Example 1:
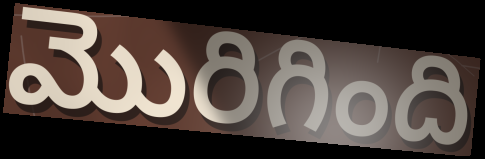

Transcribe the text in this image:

మొరిగింది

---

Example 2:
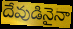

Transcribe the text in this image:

దేవుడినైనా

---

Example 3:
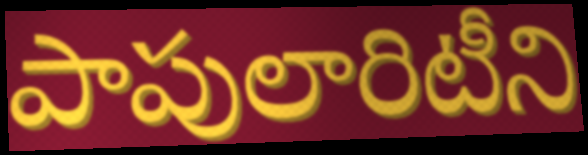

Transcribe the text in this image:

పాపులారిటీని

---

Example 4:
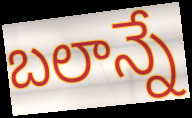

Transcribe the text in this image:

బలాన్నే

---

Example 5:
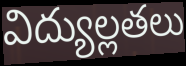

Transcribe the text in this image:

విద్యుల్లతలు